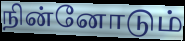
நின்னோடும்